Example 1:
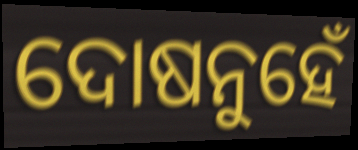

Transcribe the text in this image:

ଦୋଷନୁହେଁ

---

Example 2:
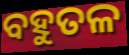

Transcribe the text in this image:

ବହୁତଳ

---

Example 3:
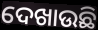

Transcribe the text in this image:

ଦେଖାଉଛି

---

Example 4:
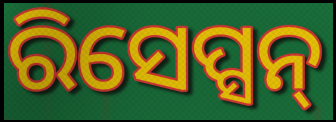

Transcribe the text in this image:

ରିସେପ୍ସନ୍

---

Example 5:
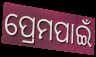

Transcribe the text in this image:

ପ୍ରେମପାଇଁ